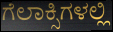
ಗೆಲಾಕ್ಸಿಗಳಲ್ಲಿ